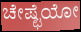
ಚೇಷ್ಟೆಯೋ